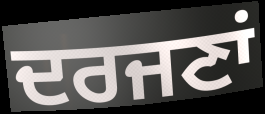
ਦਰਜਣਾਂ